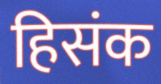
हिसंक